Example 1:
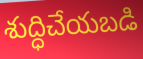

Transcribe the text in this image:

శుద్ధిచేయబడి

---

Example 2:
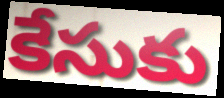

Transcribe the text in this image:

కేసుకు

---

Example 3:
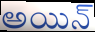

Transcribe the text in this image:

అయిన్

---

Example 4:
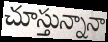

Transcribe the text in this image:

చూస్తున్నానా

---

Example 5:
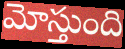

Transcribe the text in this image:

మోస్తుంది